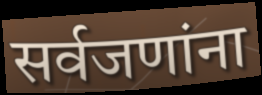
सर्वजणांना